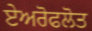
ਏਅਰੋਫਲੋਤ